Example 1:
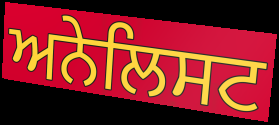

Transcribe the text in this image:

ਅਨੇਲਿਸਟ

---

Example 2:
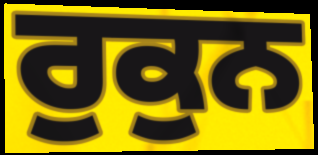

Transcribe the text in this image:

ਰੁਕੁਨ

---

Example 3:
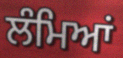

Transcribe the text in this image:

ਲੰਮਿਆਂ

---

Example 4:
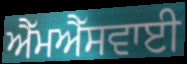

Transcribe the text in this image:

ਐੱਮਐੱਸਵਾਈ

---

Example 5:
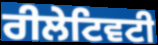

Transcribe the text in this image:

ਰੀਲੇਟਿਵਟੀ